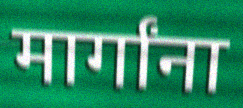
मार्गांना